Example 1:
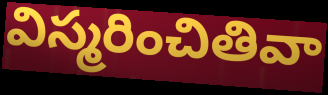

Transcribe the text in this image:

విస్మరించితివా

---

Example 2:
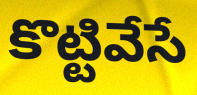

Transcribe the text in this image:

కొట్టివేసే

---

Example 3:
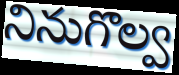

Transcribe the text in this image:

నినుగొల్వ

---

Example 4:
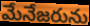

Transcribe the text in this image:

మేనేజరును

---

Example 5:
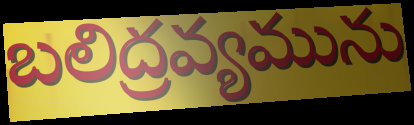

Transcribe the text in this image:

బలిద్రవ్యమును